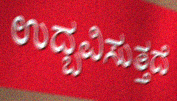
ಉದ್ಬವಿಸುತ್ತದೆ